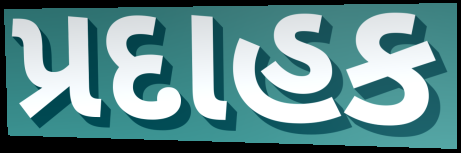
પ્રદાહક